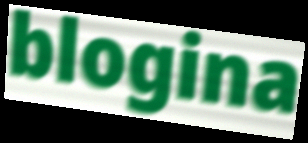
blogina